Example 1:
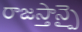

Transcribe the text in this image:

రాజస్తాన్పై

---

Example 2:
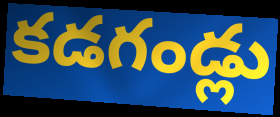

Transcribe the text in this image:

కడగండ్లు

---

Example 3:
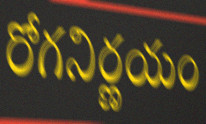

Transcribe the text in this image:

రోగనిర్ణయం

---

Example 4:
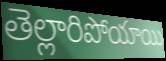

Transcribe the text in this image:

తెల్లారిపోయాయి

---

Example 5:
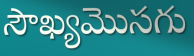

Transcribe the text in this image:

సౌఖ్యమొసగు